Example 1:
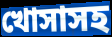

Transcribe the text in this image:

খোসাসহ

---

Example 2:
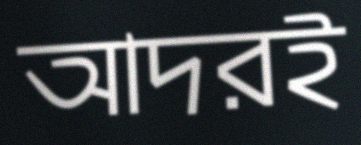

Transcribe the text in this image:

আদরই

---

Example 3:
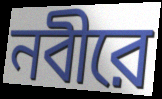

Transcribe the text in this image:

নবীরে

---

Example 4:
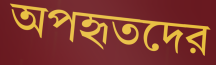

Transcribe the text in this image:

অপহৃতদের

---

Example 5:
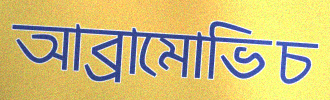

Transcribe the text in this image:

আব্রামোভিচ